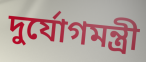
দুর্যোগমন্ত্রী